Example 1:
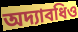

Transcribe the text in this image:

অদ্যাবধিও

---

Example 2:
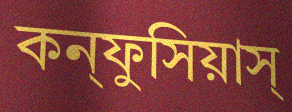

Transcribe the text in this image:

কন্ফুসিয়াস্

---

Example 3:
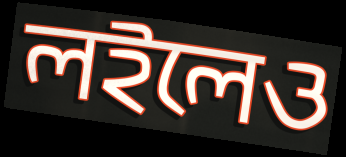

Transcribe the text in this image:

লইলেও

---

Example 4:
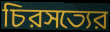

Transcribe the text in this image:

চিরসত্যের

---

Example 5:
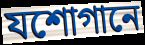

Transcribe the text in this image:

যশোগানে